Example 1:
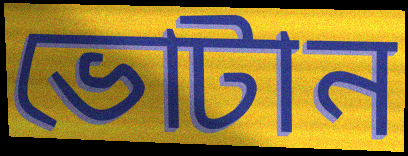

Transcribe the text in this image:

ভোটান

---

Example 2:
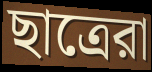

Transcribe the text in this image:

ছাত্রেরা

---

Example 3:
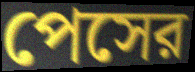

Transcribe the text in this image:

পেসের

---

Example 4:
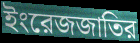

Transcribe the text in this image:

ইংরেজজাতির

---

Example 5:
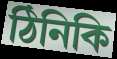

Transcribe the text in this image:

ঠিনিকি